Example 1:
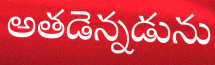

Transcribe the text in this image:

అతడెన్నడును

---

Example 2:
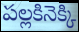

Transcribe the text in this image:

పల్లకినెక్కి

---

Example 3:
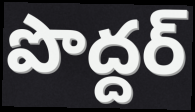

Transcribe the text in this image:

పొద్దర్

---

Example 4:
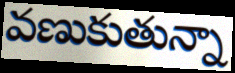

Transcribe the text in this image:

వణుకుతున్నా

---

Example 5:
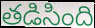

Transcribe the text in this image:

తడిసింది